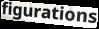
figurations